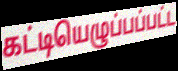
கட்டியெழுப்பப்பட்ட